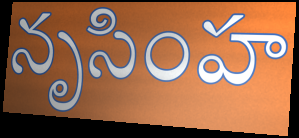
నృసింహ